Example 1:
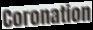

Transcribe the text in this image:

Coronation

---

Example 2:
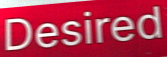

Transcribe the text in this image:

Desired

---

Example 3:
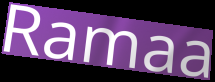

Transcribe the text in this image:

Ramaa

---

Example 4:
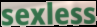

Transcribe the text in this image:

sexless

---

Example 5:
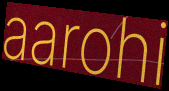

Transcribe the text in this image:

aarohi